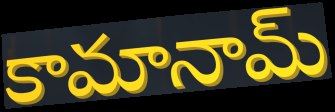
కామానామ్